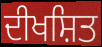
ਦੀਖਸ਼ਿਤ